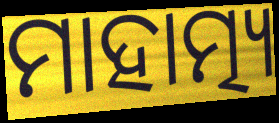
ମାହାତ୍ମ୍ୟ